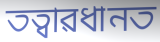
তত্বাৱধানত